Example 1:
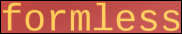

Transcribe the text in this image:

formless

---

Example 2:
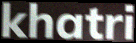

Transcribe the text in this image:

khatri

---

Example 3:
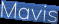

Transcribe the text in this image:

Mavis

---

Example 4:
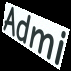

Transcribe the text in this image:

Admi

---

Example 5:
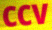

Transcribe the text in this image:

CCV